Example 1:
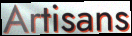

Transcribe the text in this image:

Artisans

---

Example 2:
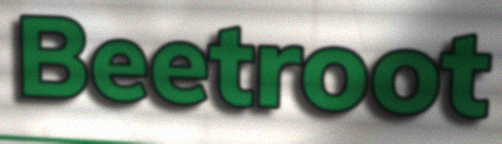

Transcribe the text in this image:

Beetroot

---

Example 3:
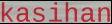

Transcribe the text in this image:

kasihan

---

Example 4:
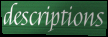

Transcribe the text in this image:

descriptions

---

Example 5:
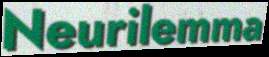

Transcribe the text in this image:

Neurilemma